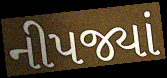
નીપજ્યાં